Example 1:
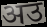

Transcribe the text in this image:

अउ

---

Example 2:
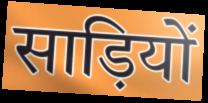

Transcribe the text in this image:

साड़ियों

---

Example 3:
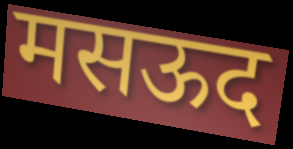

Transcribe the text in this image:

मसऊद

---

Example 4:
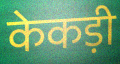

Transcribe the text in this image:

केकड़ी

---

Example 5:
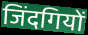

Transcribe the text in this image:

जिंदगियों